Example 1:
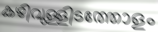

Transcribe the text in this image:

കഴിവുള്ളിടത്തോളം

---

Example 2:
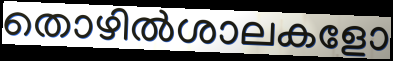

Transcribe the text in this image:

തൊഴിൽശാലകളോ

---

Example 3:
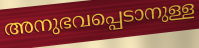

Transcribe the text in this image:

അനുഭവപ്പെടാനുള്ള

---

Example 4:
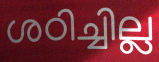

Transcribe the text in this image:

ശഠിച്ചില്ല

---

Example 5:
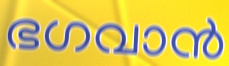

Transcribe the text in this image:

ഭഗവാൻ